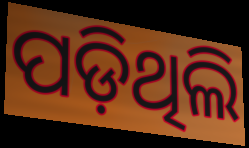
ପଡ଼ିଥିଲି